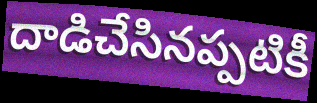
దాడిచేసినప్పటికీ